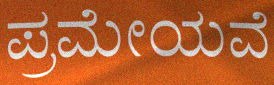
ಪ್ರಮೇಯವೆ